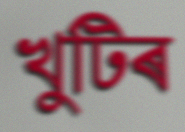
খুটিৰ